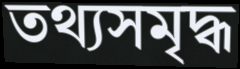
তথ্যসমৃদ্ধ